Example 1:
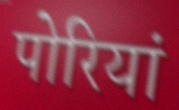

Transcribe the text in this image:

पोरियां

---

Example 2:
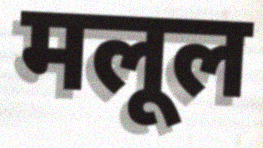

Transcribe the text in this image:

मलूल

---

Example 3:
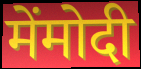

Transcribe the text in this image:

मेंमोदी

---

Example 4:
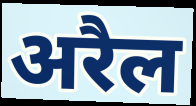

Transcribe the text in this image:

अरैल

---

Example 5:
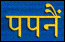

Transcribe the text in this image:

पपनैं